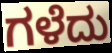
ಗಳೆದು